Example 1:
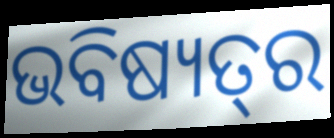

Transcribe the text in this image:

ଭବିଷ୍ୟତ୍‌ର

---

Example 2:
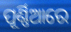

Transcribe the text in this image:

ପୂର୍ଣ୍ଣିଆରେ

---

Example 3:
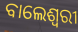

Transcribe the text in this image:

ବାଲେଶ୍ଵରୀ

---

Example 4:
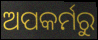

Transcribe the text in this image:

ଅପକର୍ମରୁ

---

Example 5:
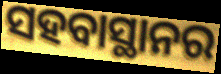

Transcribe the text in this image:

ସହବାସ୍ଥାନର